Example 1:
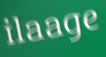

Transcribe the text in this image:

ilaage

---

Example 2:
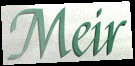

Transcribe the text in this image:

Meir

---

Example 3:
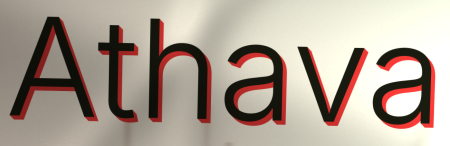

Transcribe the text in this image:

Athava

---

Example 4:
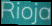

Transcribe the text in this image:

Rioja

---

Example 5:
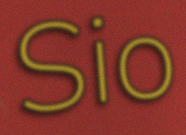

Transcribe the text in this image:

Sio